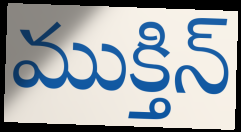
ముక్తిన్